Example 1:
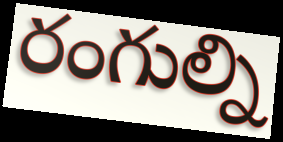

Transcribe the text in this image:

రంగుల్ని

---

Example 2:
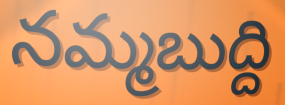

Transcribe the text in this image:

నమ్మబుద్ది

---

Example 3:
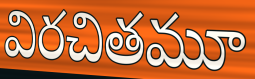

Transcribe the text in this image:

విరచితమూ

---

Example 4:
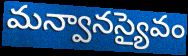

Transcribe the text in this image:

మన్వానస్యైవం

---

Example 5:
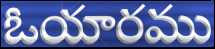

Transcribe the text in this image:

ఓయారము